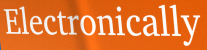
Electronically